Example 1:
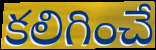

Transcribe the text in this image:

కలిగించే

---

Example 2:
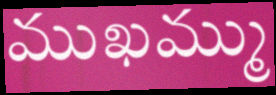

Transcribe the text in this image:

ముఖమ్ము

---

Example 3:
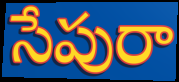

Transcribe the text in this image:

సేపురా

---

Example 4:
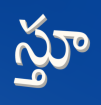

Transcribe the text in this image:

స్తూ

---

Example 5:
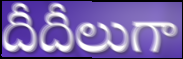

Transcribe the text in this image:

దీదీలుగా